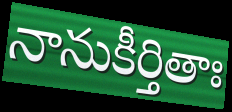
నానుకీర్తితాః